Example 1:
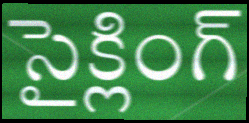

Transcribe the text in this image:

సైక్లింగ్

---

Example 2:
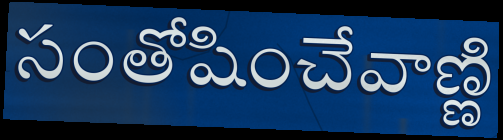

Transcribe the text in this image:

సంతోషించేవాణ్ణి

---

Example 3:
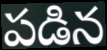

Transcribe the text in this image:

పడిన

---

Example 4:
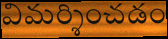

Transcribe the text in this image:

విమర్శించడం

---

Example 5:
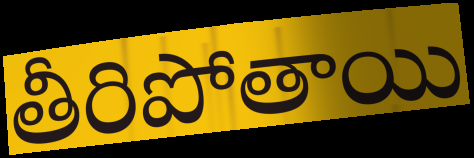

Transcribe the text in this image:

తీరిపోతాయి